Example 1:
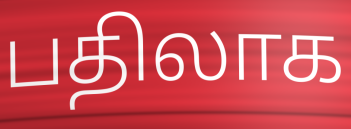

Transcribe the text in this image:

பதிலாக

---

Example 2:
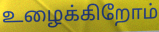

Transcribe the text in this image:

உழைக்கிறோம்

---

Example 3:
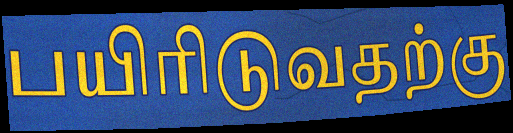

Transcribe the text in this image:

பயிரிடுவதற்கு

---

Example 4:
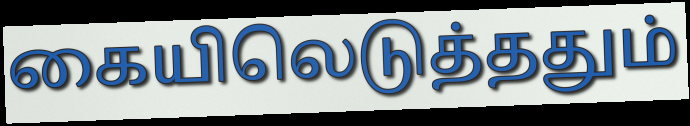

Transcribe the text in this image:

கையிலெடுத்ததும்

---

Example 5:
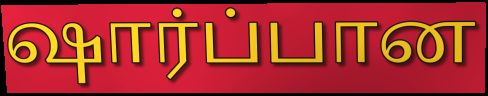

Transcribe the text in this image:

ஷார்ப்பான